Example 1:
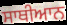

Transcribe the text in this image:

ਸਾਥੀਆਨ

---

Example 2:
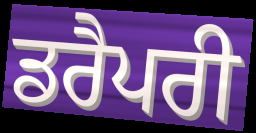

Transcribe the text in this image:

ਡਰੈਪਰੀ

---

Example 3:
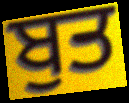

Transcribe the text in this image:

ਬੁਤ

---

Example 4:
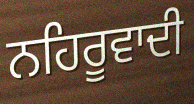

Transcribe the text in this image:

ਨਹਿਰੂਵਾਦੀ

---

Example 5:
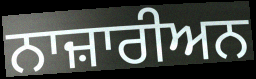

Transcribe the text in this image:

ਨਾਜ਼ਾਰੀਅਨ